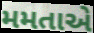
મમતાએ